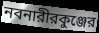
নবনারীরকুঞ্জের